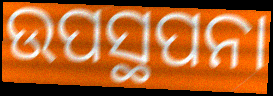
ଉପସ୍ଥପନା